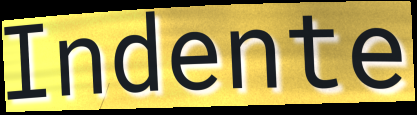
Indente